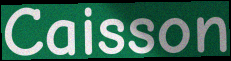
Caisson